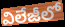
విలేజీలో